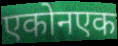
एकोनएक